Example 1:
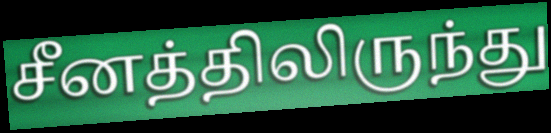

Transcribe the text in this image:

சீனத்திலிருந்து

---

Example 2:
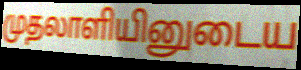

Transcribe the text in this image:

முதலாளியினுடைய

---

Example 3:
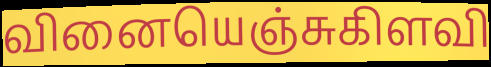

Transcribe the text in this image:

வினையெஞ்சுகிளவி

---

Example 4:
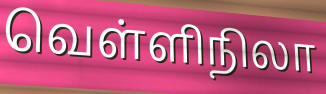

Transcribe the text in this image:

வெள்ளிநிலா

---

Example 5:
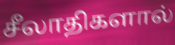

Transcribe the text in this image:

சீலாதிகளால்